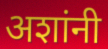
अशांनी